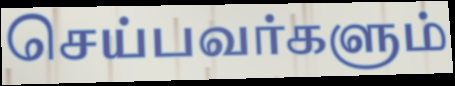
செய்பவர்களும்